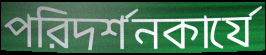
পরিদর্শনকার্যে